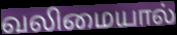
வலிமையால்